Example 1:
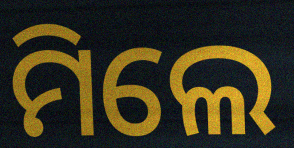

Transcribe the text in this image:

ମିଲେ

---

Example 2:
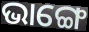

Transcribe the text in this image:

ଭାଙ୍ଗେ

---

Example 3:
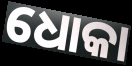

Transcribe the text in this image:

ଧୋକା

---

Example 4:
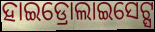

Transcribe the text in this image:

ହାଇଡ୍ରୋଲାଇସେଟ୍ସ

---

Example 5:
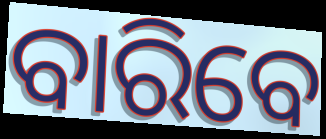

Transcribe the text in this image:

ବାରିବେ